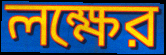
লক্ষের